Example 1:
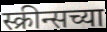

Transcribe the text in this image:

स्क्रीन्सच्या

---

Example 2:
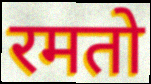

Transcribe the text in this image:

रमतो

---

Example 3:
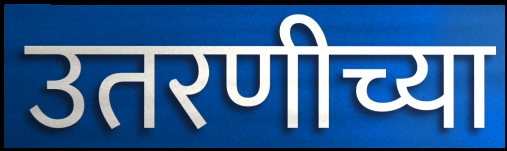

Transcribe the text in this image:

उतरणीच्या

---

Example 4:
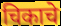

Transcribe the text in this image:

चिकाचे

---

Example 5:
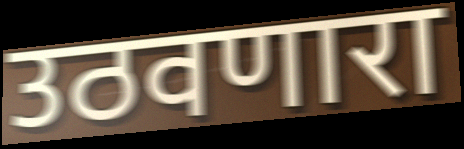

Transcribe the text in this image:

उठवणारा